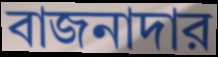
বাজনাদার